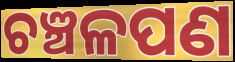
ଚଞ୍ଚଳପଣ